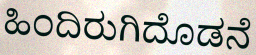
ಹಿಂದಿರುಗಿದೊಡನೆ